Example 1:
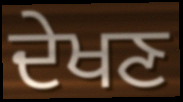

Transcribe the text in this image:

ਦੇਖਣ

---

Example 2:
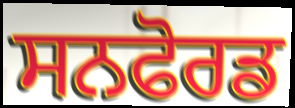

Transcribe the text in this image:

ਸਨਫੋਰਡ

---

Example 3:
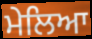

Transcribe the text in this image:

ਮੇਲਿਆ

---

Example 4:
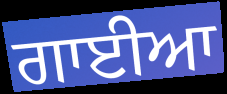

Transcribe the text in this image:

ਗਾਈਆ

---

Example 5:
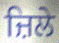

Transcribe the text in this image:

ਜ਼ਿਲੇ